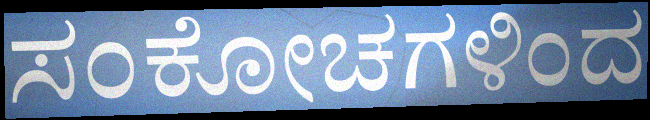
ಸಂಕೋಚಗಳಿಂದ